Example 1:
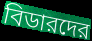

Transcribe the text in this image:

বিডারদের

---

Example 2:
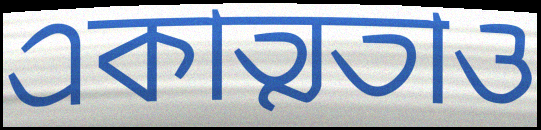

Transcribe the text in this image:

একাত্মতাও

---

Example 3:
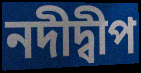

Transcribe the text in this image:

নদীদ্বীপ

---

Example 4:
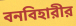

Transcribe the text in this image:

বনবিহারীর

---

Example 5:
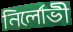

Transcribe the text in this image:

নির্লোভী